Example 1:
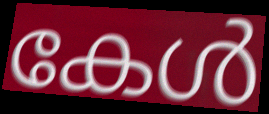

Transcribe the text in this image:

കേൾ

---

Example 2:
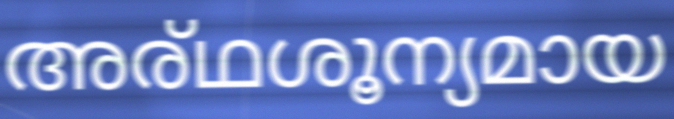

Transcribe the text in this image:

അര്ഥശൂന്യമായ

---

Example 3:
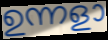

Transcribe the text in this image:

ഉന്നളാ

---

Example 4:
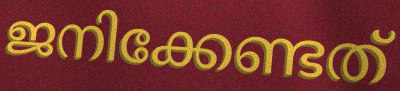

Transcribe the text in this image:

ജനിക്കേണ്ടത്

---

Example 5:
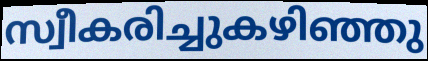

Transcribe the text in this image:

സ്വീകരിച്ചുകഴിഞ്ഞു